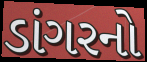
ડાંગરનો